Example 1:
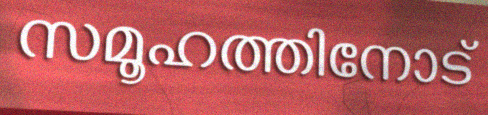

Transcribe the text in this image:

സമൂഹത്തിനോട്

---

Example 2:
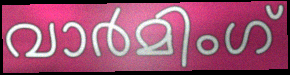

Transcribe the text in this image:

വാർമിംഗ്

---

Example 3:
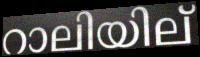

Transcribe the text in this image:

റാലിയില്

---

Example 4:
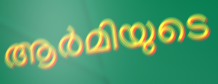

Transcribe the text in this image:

ആർമിയുടെ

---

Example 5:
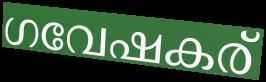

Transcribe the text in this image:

ഗവേഷകര്